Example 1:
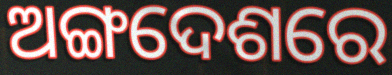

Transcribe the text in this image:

ଅଙ୍ଗଦେଶରେ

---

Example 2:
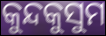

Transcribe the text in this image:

କୁନ୍ଦକୁସୁମ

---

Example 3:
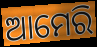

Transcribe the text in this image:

ଆମେରି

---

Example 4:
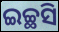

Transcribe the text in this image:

ଇଚ୍ଛସି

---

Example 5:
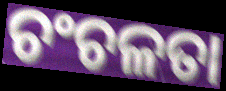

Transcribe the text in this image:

ଚଂଚଳତା